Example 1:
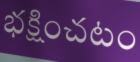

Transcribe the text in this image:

భక్షించటం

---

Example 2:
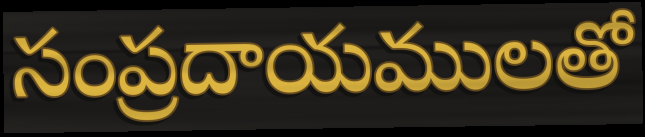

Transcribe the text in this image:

సంప్రదాయములతో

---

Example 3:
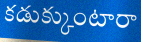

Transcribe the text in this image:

కడుక్కుంటారా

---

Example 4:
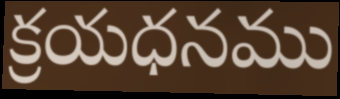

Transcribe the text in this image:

క్రయధనము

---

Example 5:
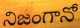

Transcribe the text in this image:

నిజంగానో